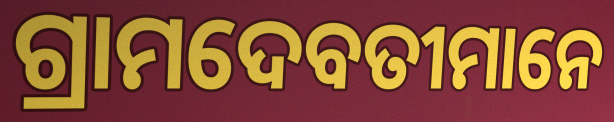
ଗ୍ରାମଦେବତୀମାନେ